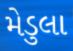
મેડુલા